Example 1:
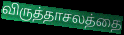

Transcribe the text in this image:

விருத்தாசலத்தை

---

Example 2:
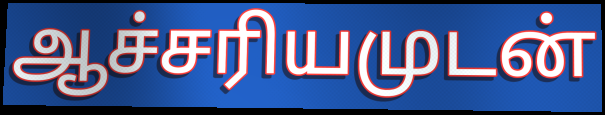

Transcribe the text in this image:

ஆச்சரியமுடன்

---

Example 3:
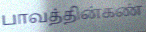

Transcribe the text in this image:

பாவத்தின்கண்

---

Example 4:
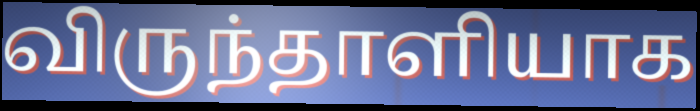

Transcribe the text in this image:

விருந்தாளியாக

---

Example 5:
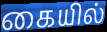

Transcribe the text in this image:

கையில்